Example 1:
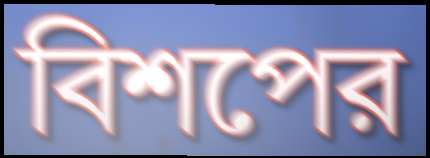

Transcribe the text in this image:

বিশপের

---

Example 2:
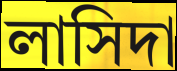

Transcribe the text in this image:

লাসিদা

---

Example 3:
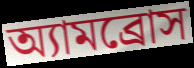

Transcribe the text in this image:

অ্যামব্রোস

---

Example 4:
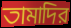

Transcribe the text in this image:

তামাদির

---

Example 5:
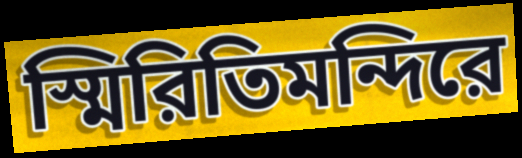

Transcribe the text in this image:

স্মিরিতিমন্দিরে